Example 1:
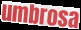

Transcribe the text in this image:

umbrosa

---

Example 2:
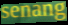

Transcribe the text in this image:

senang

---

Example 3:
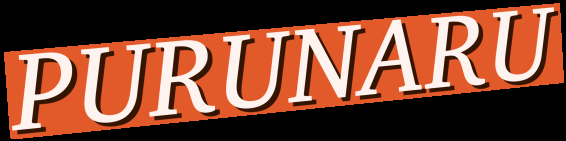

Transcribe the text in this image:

PURUNARU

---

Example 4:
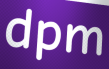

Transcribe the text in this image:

dpm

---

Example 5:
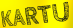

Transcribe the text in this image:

KARTU